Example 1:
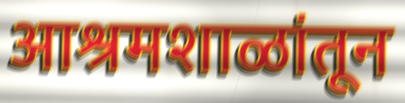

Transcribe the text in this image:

आश्रमशाळांतून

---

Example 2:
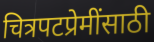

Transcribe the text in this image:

चित्रपटप्रेमींसाठी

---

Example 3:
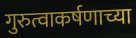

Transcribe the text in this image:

गुरुत्वाकर्षणाच्या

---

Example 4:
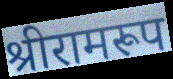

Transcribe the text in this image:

श्रीरामरूप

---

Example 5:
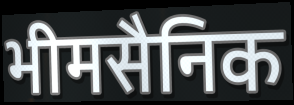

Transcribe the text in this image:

भीमसैनिक